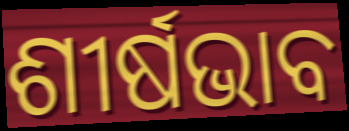
ଶୀର୍ଷଭାବ